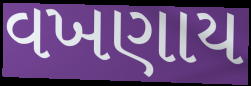
વખણાય